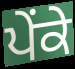
ਪੇਂਕੇ